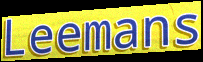
Leemans